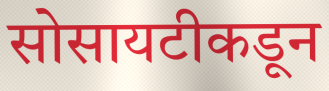
सोसायटीकडून